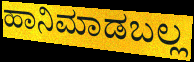
ಹಾನಿಮಾಡಬಲ್ಲ